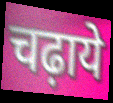
चढ़ाये